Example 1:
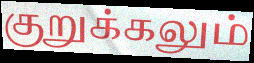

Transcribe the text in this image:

குறுக்கலும்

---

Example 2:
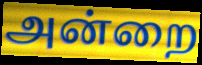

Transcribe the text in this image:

அன்றை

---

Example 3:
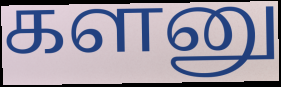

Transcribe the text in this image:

களனு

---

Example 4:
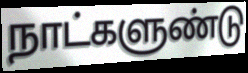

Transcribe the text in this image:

நாட்களுண்டு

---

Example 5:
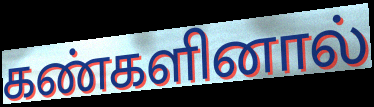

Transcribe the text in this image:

கண்களினால்